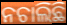
ନଚାଲିଛି